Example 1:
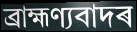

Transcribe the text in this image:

ব্ৰাহ্মণ্যবাদৰ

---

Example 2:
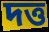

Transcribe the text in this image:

দত্ত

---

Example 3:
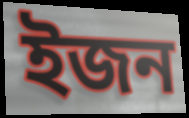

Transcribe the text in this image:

ইজন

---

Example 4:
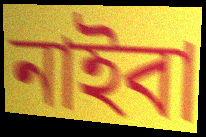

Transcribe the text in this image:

নাইবা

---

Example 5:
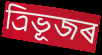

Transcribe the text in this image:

ত্ৰিভূজৰ